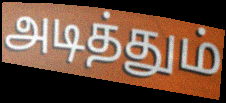
அடித்தும்